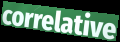
correlative